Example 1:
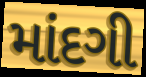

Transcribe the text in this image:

માંદગી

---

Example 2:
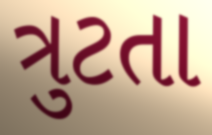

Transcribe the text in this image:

ત્રુટતા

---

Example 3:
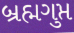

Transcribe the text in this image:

બ્રહ્મગુપ્ત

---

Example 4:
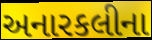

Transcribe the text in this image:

અનારકલીના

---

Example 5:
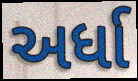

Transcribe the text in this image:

અર્ધા